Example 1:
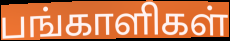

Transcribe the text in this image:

பங்காளிகள்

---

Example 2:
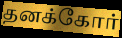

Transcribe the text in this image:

தனக்கோர்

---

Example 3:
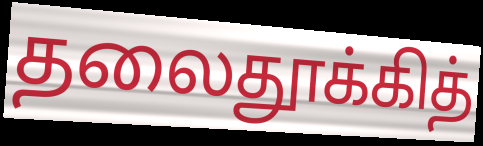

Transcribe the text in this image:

தலைதூக்கித்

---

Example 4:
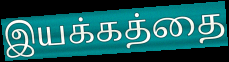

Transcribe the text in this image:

இயக்கத்தை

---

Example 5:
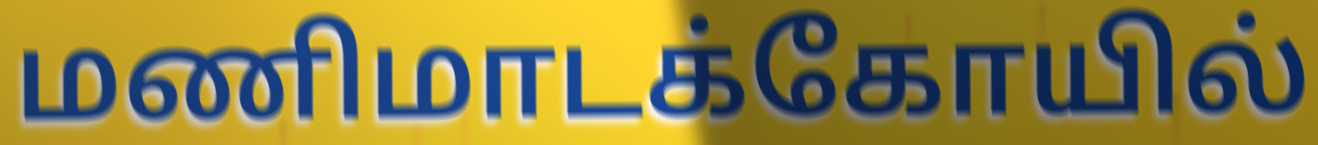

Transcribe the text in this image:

மணிமாடக்கோயில்